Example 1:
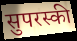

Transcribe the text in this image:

सुपरस्की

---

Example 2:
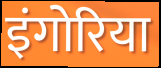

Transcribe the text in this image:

इंगोरिया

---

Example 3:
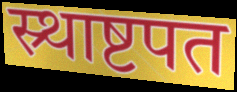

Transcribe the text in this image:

स्र्थाष्टपत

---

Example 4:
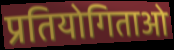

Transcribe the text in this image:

प्रतियोगिताओ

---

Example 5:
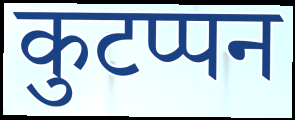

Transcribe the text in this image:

कुटप्पन